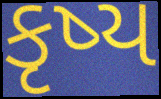
કૃષ્ય